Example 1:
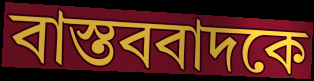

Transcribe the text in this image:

বাস্তববাদকে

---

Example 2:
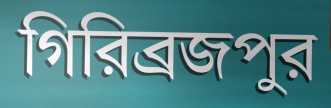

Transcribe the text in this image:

গিরিব্রজপুর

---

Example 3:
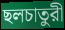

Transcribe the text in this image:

ছলচাতুরী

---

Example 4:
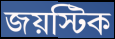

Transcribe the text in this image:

জয়স্টিক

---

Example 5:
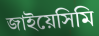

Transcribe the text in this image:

জাইয়েসিমি